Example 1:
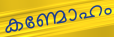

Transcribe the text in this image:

കണ്മോഹം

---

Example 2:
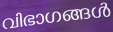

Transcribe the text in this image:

വിഭാഗങ്ങൾ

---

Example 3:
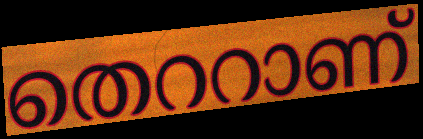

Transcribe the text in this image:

തെററാണ്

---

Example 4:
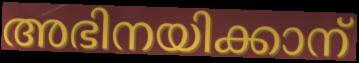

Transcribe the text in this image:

അഭിനയിക്കാന്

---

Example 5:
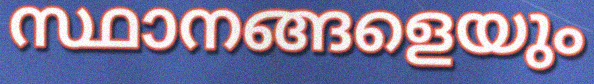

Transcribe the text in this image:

സ്ഥാനങ്ങളെയും